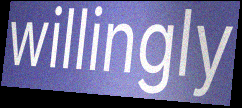
willingly